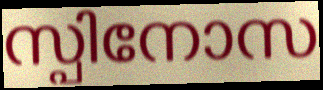
സ്പിനോസ